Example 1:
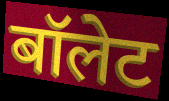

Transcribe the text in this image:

बॉलेट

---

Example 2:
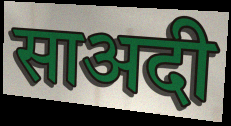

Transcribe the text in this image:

साअदी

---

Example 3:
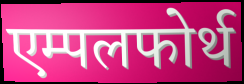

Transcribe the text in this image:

एम्पलफोर्थ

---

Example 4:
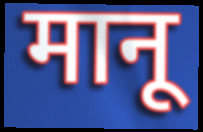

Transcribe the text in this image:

मानू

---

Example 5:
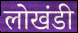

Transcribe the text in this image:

लोखंडी